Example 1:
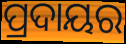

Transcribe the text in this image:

ପ୍ରଦାୟର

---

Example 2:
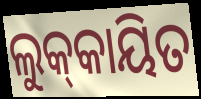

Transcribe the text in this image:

ଲୁକ୍‌କାୟିତ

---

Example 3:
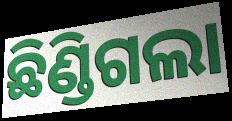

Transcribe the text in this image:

ଛିଣ୍ଡିଗଲା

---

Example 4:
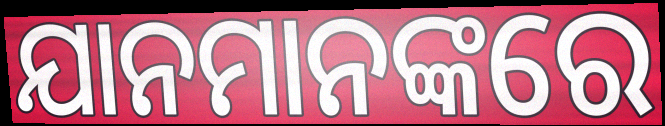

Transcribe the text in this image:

ଯାନମାନଙ୍କରେ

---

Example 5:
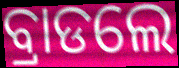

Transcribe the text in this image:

ବ୍ରାଡଲେ